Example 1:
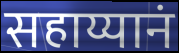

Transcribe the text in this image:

सहाय्यानं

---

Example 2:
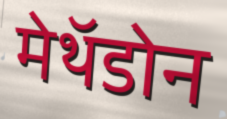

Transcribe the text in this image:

मेथॅडोन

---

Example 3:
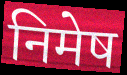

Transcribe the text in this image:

निमेष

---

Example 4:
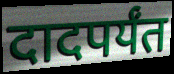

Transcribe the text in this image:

दादपर्यंत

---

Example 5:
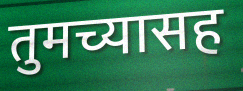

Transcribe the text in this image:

तुमच्यासह